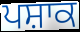
ਪਸ਼ਾਕ